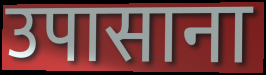
उपासाना